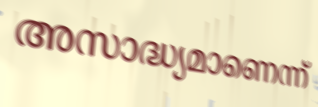
അസാദ്ധ്യമാണെന്ന്